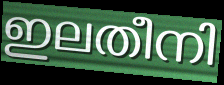
ഇലതീനി